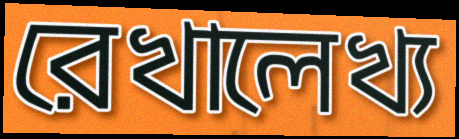
রেখালেখ্য